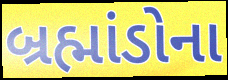
બ્રહ્માંડોના